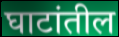
घाटांतील